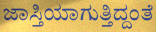
ಜಾಸ್ತಿಯಾಗುತ್ತಿದ್ದಂತೆ